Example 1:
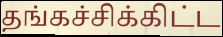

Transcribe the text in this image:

தங்கச்சிக்கிட்ட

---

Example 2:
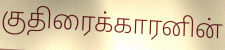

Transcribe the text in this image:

குதிரைக்காரனின்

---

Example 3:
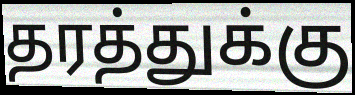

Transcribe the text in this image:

தரத்துக்கு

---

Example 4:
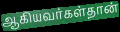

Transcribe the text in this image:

ஆகியவர்கள்தான்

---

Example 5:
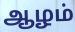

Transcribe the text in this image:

ஆழம்